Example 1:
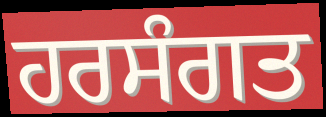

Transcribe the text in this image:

ਹਰਸੰਗਤ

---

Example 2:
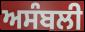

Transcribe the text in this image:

ਅਸੰਬਲੀ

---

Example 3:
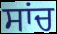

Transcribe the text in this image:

ਸਾਂਚ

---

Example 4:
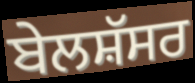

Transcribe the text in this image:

ਬੇਲਸ਼ੱਸਰ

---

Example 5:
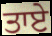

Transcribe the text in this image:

ਤਾਏ